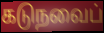
கடுநவைப்